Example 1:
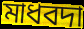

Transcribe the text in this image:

মাধবদা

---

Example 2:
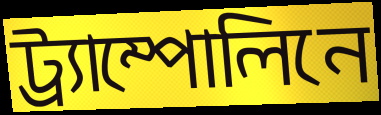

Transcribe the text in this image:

ট্র্যাম্পোলিনে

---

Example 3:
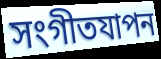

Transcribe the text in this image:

সংগীতযাপন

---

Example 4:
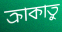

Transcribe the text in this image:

ক্রাকাতু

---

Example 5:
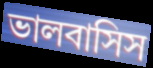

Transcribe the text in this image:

ভালবাসিস